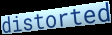
distorted